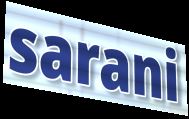
sarani